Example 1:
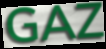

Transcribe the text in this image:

GAZ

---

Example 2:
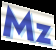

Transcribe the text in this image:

Mz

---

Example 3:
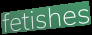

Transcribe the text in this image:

fetishes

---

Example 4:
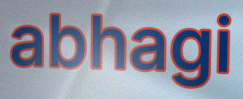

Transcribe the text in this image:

abhagi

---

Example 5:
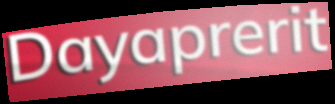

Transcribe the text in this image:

Dayaprerit